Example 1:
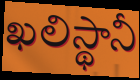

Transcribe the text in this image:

ఖలిస్థానీ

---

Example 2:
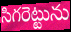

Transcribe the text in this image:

సిగరెట్టును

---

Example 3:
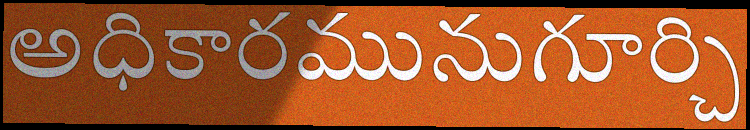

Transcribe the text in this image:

అధికారమునుగూర్చి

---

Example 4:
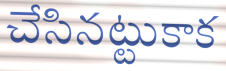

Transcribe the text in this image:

చేసినట్టుకాక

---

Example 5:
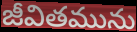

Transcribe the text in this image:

జీవితమును